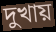
দুখায়